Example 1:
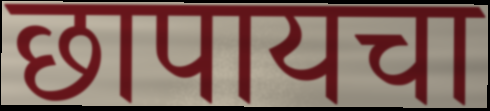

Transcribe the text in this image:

छापायचा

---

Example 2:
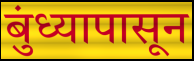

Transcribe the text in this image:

बुंध्यापासून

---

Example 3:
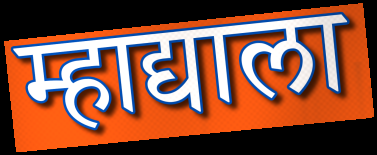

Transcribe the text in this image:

म्हाद्याला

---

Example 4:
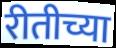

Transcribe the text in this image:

रीतीच्या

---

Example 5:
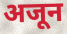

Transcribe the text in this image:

अजून